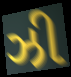
ઝી